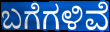
ಬಗೆಗಳಿವೆ